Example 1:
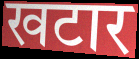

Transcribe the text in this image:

खटार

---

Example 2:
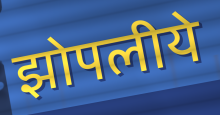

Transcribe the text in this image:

झोपलीये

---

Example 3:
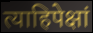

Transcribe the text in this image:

त्याहिपेक्षां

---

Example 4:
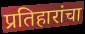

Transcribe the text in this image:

प्रतिहारांचा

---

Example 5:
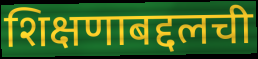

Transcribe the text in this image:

शिक्षणाबद्दलची